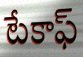
టేకాఫ్